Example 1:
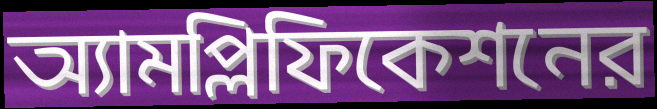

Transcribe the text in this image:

অ্যামপ্লিফিকেশনের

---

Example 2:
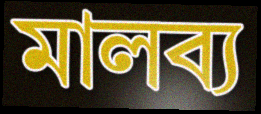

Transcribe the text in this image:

মালব্য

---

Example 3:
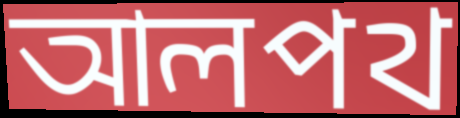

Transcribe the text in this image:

আলপথ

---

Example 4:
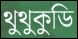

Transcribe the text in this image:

থুথুকুডি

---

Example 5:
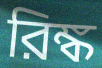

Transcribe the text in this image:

রিঙ্ক